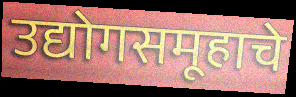
उद्योगसमूहाचे